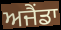
ਅਜੈਂਡਾ